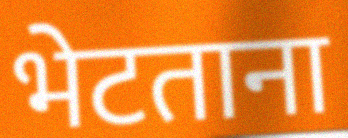
भेटताना